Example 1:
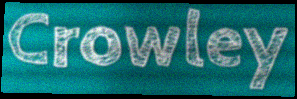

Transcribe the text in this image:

Crowley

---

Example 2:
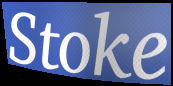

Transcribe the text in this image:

Stoke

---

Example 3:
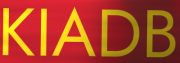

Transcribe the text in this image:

KIADB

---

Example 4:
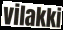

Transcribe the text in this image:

vilakki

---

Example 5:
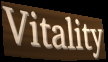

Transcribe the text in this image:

Vitality